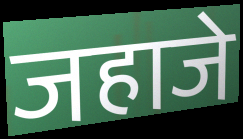
जहाजे